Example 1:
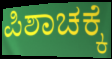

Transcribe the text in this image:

ಪಿಶಾಚಕ್ಕೆ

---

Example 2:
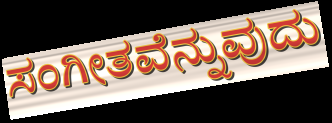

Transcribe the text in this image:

ಸಂಗೀತವೆನ್ನುವುದು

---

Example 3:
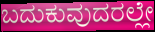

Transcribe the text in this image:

ಬದುಕುವುದರಲ್ಲೇ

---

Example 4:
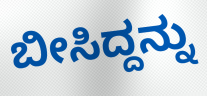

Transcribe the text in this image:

ಬೀಸಿದ್ದನ್ನು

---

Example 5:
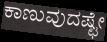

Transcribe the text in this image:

ಕಾಣುವುದಷ್ಟೇ